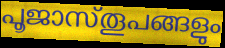
പൂജാസ്‌തൂപങ്ങളും